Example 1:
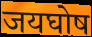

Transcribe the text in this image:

जयघोष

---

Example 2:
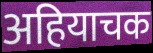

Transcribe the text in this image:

अहियाचक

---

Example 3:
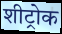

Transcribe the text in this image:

शीट्रोक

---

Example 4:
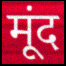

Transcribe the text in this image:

मूंद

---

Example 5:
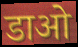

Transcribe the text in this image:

डाओ